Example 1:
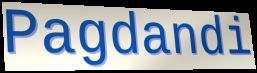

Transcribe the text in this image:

Pagdandi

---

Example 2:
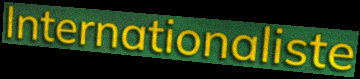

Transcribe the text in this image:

Internationaliste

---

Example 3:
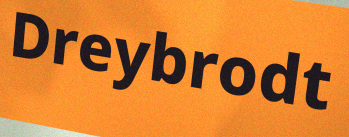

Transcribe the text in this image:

Dreybrodt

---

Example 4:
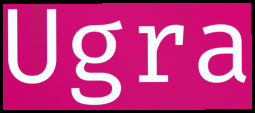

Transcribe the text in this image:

Ugra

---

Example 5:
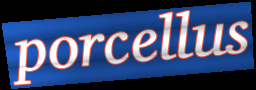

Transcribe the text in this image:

porcellus